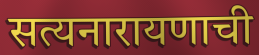
सत्यनारायणाची